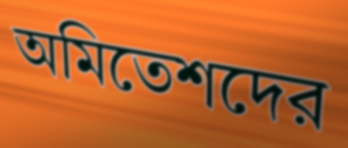
অমিতেশদের